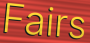
Fairs